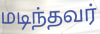
மடிந்தவர்